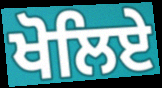
ਖੋਲਿਏ